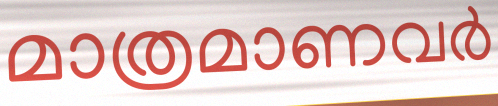
മാത്രമാണവർ